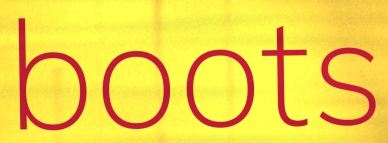
boots